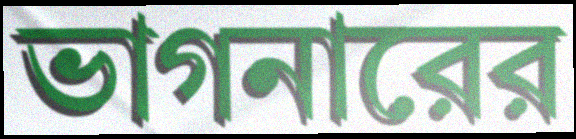
ভাগনারের